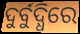
ଦୁର୍ବୁଦ୍ଧିରେ